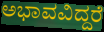
ಅಭಾವವಿದ್ದರೆ